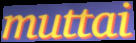
muttai